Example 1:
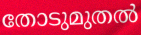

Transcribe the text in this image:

തോടുമുതൽ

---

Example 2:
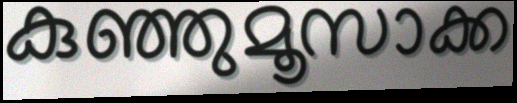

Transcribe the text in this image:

കുഞ്ഞുമൂസാക്ക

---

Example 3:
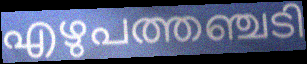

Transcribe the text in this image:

എഴുപത്തഞ്ചടി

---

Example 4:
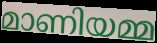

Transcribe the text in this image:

മാണിയമ്മ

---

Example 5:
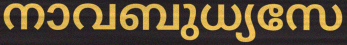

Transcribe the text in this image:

നാവബുധ്യസേ